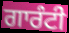
ਗਾਰੰਟੀ